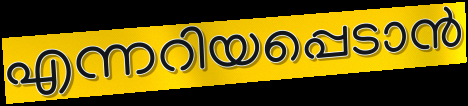
എന്നറിയപ്പെടാൻ